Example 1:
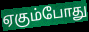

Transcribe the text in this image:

ஏகும்போது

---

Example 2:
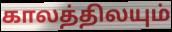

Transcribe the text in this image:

காலத்திலயும்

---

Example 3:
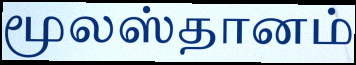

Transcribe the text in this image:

மூலஸ்தானம்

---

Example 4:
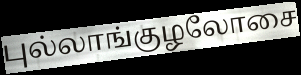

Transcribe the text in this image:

புல்லாங்குழலோசை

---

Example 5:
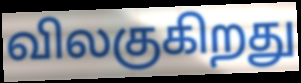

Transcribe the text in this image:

விலகுகிறது